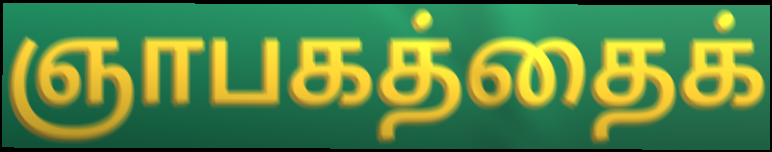
ஞாபகத்தைக்